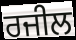
ਰਜੀਲ